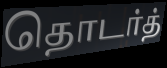
தொடர்த்